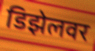
डिझेलवर